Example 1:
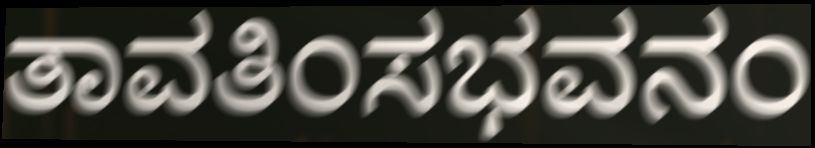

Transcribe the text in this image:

ತಾವತಿಂಸಭವನಂ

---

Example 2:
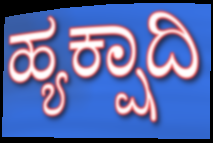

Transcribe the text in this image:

ಹ್ಯಕ್ಷಾದಿ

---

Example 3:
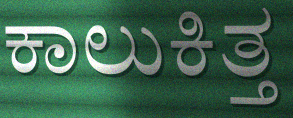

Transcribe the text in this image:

ಕಾಲುಕಿತ್ತ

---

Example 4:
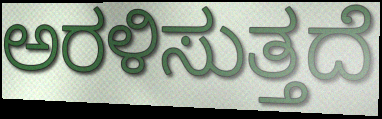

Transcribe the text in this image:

ಅರಳಿಸುತ್ತದೆ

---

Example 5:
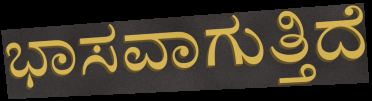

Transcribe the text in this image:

ಭಾಸವಾಗುತ್ತಿದೆ